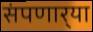
संपणार्‍या